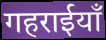
गहराईयाँ